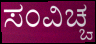
ಸಂವಿಚ್ಚ